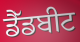
ਡੈੱਡਬੀਟ